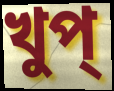
খুপ্